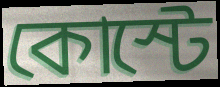
কোস্টে